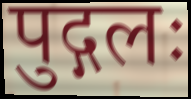
पुद्गलः